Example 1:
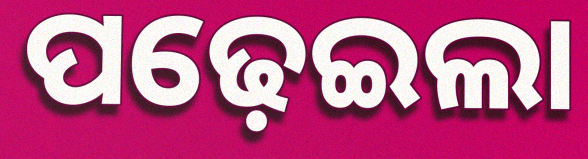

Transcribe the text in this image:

ପଢ଼େଇଲା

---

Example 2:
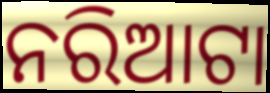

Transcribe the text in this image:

ନରିଆଟା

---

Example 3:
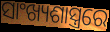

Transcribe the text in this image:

ସାଂଖ୍ୟଶାସ୍ତ୍ରରେ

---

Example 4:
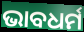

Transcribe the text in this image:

ଭାବଧର୍ମ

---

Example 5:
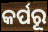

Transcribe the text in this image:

କର୍ପରୂ